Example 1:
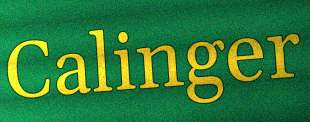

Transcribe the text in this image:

Calinger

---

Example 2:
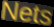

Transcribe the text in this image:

Nets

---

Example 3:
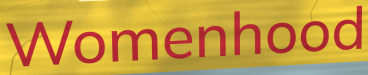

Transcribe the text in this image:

Womenhood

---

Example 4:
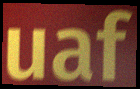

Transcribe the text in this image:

uaf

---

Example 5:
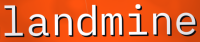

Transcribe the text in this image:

landmine